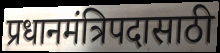
प्रधानमंत्रिपदासाठी